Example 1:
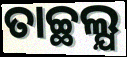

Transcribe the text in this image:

ତାଚ୍ଛଲ୍ଯ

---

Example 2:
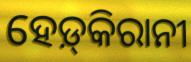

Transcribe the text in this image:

ହେଡ଼୍‌କିରାନୀ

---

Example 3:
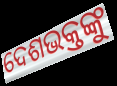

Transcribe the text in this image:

ଦେଶଭକ୍ତଙ୍କୁ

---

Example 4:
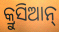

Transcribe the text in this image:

କ୍ରୁସିଆନ୍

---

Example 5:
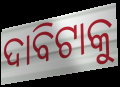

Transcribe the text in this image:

ଦାବିଟାକୁ